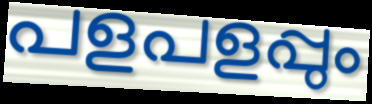
പളപളപ്പും